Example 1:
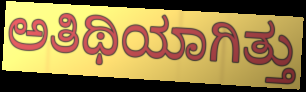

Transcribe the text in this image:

ಅತಿಥಿಯಾಗಿತ್ತು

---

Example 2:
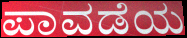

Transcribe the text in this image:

ಪಾವಡೆಯ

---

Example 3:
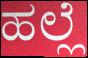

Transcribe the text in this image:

ಹಲ್ಲೆ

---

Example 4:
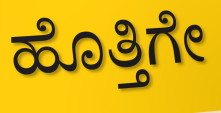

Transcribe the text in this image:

ಹೊತ್ತಿಗೇ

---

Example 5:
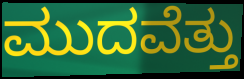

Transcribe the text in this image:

ಮುದವೆತ್ತು